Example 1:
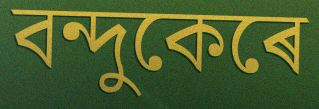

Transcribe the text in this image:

বন্দুকেৰে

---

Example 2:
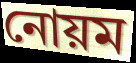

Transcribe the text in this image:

নোয়ম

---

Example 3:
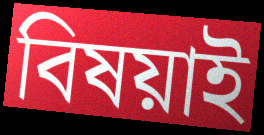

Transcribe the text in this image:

বিষয়াই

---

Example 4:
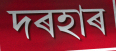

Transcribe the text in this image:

দৰহাৰ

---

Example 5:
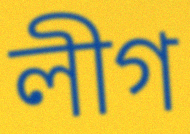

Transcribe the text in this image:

লীগ